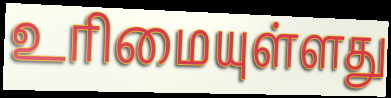
உரிமையுள்ளது